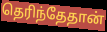
தெரிந்தேதான்